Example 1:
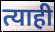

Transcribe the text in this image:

त्याही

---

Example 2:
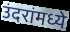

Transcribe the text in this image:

उंदरांमध्ये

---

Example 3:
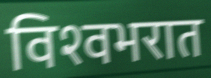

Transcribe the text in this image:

विश्वभरात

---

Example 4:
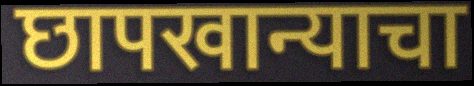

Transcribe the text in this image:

छापखान्याचा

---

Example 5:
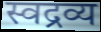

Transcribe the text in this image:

स्वद्रव्य